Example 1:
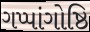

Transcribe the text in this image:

ગપ્પાંગોષ્ઠિ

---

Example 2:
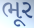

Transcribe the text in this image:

ભૂર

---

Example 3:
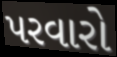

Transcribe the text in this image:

પરવારો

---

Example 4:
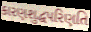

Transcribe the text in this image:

કારણશુદ્ધપરિણતિ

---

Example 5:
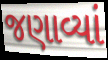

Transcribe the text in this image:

જણાવ્યાં